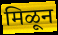
मिळून